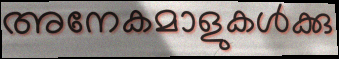
അനേകമാളുകൾക്കു